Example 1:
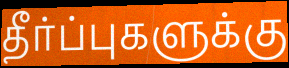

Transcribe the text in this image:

தீர்ப்புகளுக்கு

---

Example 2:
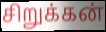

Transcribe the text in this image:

சிறுக்கன்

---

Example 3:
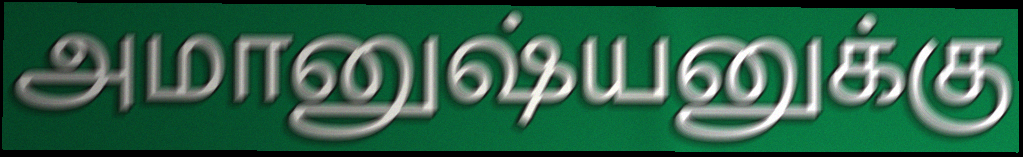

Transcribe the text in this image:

அமானுஷ்யனுக்கு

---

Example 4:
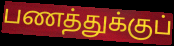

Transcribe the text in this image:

பணத்துக்குப்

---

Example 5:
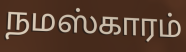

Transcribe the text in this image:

நமஸ்காரம்